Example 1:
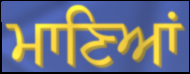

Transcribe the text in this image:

ਮਾਣਿਆਂ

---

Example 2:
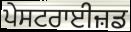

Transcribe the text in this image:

ਪੇਸਟਰਾਈਜ਼ਡ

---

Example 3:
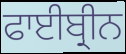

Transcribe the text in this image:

ਫਾਈਬ੍ਰੀਨ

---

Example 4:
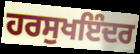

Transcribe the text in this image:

ਹਰਸੁਖਇੰਦਰ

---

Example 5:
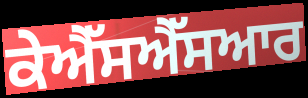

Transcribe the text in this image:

ਕੇਐੱਸਐੱਸਆਰ